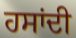
ਹਸਾਂਦੀ